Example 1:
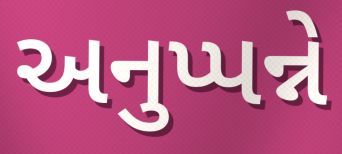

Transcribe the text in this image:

અનુપ્પન્ને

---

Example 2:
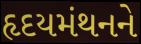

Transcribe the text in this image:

હૃદયમંથનને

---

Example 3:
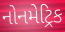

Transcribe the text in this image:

નોનમેટ્રિક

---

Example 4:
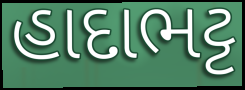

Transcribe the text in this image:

હાદાભટ્ટ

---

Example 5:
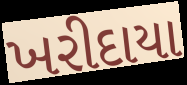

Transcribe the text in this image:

ખરીદાયા